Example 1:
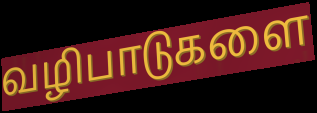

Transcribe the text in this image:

வழிபாடுகளை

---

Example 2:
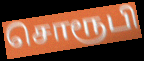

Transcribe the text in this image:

சொரூபி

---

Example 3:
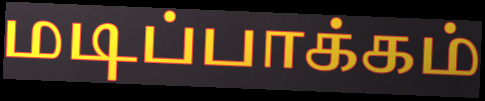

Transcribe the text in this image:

மடிப்பாக்கம்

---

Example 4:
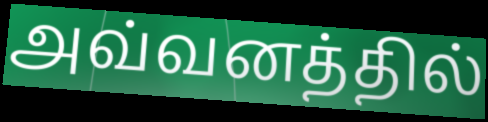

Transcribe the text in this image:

அவ்வனத்தில்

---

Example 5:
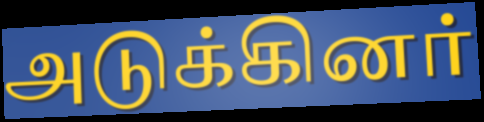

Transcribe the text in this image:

அடுக்கினர்